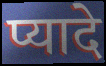
प्यादे